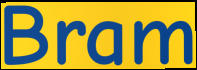
Bram